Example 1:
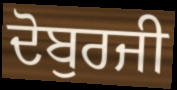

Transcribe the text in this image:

ਦੋਬੁਰਜੀ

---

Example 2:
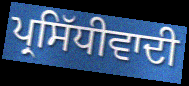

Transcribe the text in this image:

ਪ੍ਰਸਿੱਧੀਵਾਦੀ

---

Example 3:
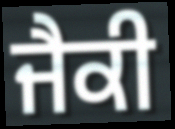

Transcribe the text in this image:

ਜੈਕੀ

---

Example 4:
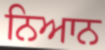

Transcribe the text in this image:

ਨਿਆਨ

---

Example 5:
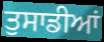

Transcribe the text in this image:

ਤੁਸਾਡੀਆਂ